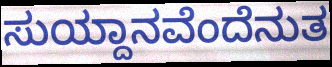
ಸುಯ್ದಾನವೆಂದೆನುತ